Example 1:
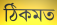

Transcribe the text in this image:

ঠিকমত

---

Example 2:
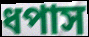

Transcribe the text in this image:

ধপাস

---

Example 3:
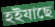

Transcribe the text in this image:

হইযাছে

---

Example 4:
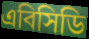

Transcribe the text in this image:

এবিসিডি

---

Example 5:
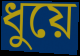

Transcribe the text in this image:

ধুয়ে